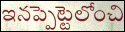
ఇనప్పెట్టెలోంచి